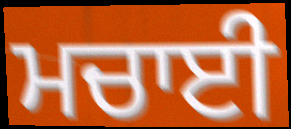
ਮਚਾਈ